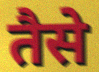
तैसे